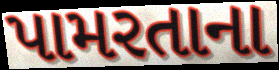
પામરતાના